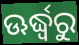
ଊର୍ଦ୍ଧ୍ଵରୁ